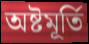
অষ্টমূৰ্তি